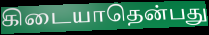
கிடையாதென்பது